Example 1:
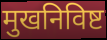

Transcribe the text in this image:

मुखनिविष्ट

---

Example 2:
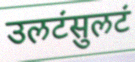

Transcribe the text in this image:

उलटंसुलटं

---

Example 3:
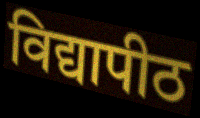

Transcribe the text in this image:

विद्यापीठ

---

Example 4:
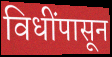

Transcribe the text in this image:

विधींपासून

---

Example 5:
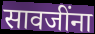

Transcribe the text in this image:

सावजींना